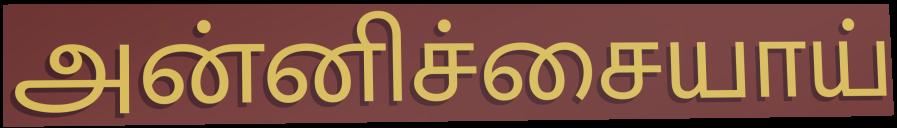
அன்னிச்சையாய்